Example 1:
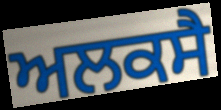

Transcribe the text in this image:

ਅਲਕਸੈ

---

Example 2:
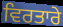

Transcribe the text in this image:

ਵਿਰਤਾਰੇ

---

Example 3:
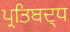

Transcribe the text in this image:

ਪ੍ਰਤਿਬਦ੍ਧ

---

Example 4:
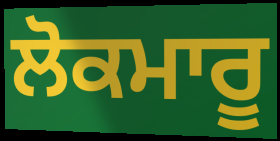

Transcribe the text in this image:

ਲੋਕਮਾਰੂ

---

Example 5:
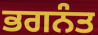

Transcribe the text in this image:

ਭਗਨੰਤ